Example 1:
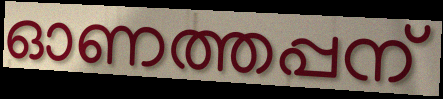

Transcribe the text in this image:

ഓണത്തപ്പന്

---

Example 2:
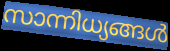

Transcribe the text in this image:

സാന്നിധ്യങ്ങൾ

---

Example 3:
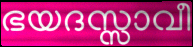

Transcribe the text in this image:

ഭയദസ്സാവീ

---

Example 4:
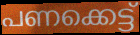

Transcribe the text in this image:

പണക്കെട്ട്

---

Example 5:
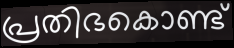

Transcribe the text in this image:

പ്രതിഭകൊണ്ട്